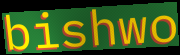
bishwo